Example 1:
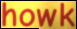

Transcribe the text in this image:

howk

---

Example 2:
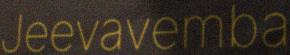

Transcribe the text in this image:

Jeevavemba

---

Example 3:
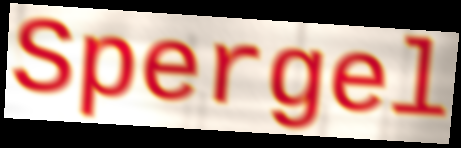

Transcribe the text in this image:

Spergel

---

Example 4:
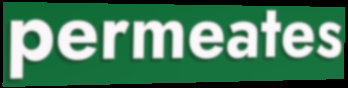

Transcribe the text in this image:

permeates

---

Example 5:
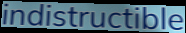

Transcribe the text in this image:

indistructible